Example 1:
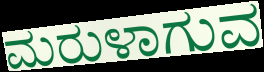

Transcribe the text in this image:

ಮರುಳಾಗುವ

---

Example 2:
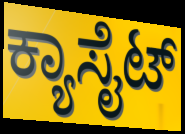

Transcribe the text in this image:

ಕ್ಯಾಸೈಟ್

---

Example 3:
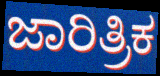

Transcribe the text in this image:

ಜಾರಿತ್ರಿಕ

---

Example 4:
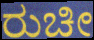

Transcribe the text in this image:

ರುಚೀ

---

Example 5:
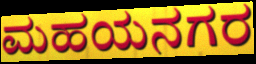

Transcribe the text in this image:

ಮಹಯನಗರ